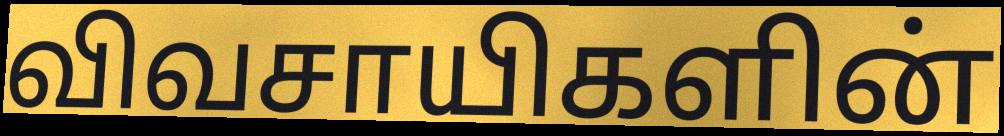
விவசாயிகளின்